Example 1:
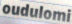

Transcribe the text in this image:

oudulomi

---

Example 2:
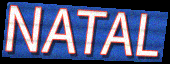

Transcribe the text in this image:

NATAL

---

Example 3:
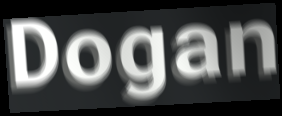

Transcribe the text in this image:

Dogan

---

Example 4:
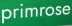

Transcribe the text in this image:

primrose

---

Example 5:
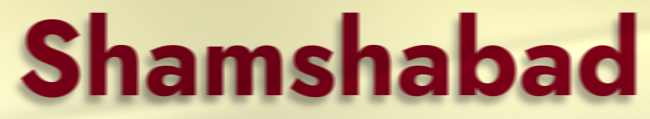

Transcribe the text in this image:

Shamshabad